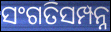
ସଂଗତିସମ୍ପନ୍ନ